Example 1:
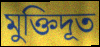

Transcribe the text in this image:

মুক্তিদূত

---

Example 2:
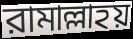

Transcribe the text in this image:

রামাল্লাহয়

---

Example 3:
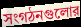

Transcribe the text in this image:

সংগঠনগুলোর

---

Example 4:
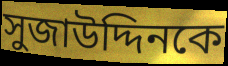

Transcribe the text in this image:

সুজাউদ্দিনকে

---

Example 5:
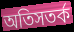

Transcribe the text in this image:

অতিসতর্ক